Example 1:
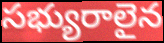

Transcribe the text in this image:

సభ్యురాలైన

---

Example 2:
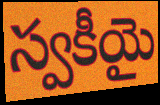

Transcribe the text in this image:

స్వకీయై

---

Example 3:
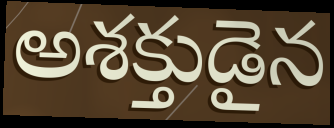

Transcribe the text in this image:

అశక్తుడైన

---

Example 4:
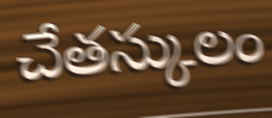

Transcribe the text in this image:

చేతస్కులం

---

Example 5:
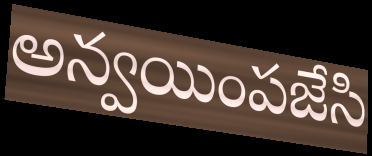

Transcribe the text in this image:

అన్వయింపజేసి